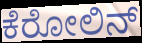
ಕೆರೋಲಿನ್